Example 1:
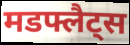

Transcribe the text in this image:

मडफ्लैट्स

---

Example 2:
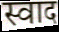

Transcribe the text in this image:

स्वाद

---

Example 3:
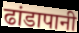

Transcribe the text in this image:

ढांडापानी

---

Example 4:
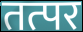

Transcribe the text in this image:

तत्‍पर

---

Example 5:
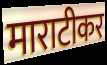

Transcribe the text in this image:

माराटीकर